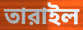
তারাইল